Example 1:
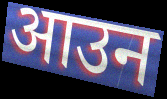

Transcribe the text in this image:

आउन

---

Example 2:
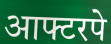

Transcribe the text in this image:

आफ्टरपे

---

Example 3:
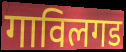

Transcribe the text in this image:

गाविलगड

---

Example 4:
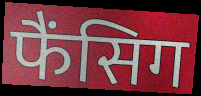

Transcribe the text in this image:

फैंसिग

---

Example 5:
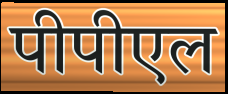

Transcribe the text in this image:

पीपीएल